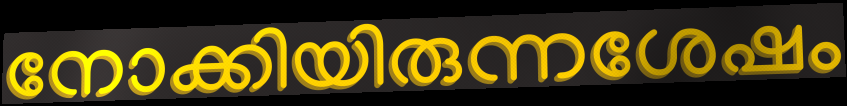
നോക്കിയിരുന്നശേഷം